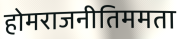
होमराजनीतिममता